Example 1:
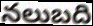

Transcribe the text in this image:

నలుబది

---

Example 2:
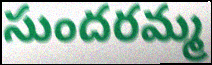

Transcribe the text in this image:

సుందరమ్మ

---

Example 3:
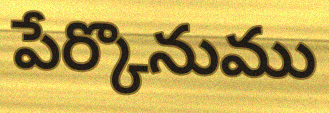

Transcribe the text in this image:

పేర్కొనుము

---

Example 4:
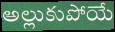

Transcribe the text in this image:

అల్లుకుపోయే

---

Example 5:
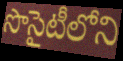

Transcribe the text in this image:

సొసైటీలోని